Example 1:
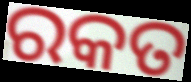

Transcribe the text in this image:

ରକତ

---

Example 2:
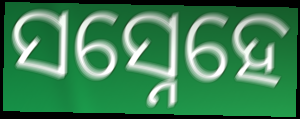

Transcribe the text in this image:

ସସ୍ନେହେ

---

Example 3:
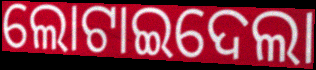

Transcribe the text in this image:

ଲୋଟାଇଦେଲା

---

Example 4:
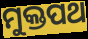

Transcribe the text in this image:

ମୁକ୍ତପଥ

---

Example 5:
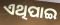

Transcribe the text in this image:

ଏଥିପାଇ